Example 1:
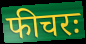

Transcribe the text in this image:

फीचरः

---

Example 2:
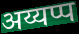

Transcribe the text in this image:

अय्यप्प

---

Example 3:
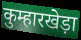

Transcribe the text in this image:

कुम्हारखेड़ा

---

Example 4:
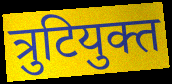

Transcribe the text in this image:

त्रुटियुक्त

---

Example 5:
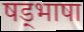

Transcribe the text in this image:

षड्भाषा